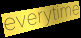
everytime